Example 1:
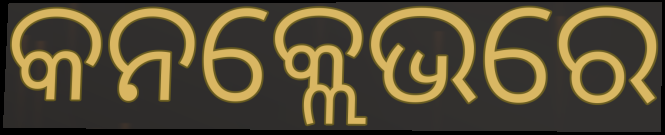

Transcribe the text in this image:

କନକ୍ଲେଭରେ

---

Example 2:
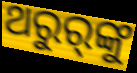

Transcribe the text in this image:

ଥରୁର୍‌ଙ୍କୁ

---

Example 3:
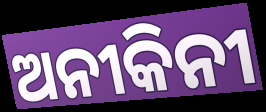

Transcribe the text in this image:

ଅନୀକିନୀ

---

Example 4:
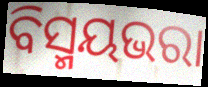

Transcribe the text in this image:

ବିସ୍ମୟଭରା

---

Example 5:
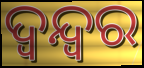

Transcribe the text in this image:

ଦ୍ଵନ୍ଦ୍ୱର